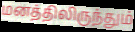
மனத்திலிருந்தும்